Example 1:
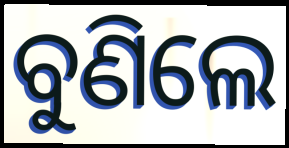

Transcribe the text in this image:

ବୁଣିଲେ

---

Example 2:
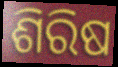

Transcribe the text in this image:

ଶିରିଷ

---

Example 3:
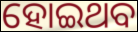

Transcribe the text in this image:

ହୋଇଥବ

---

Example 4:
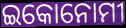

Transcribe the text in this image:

ଇକୋନୋମୀ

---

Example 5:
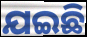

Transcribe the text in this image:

ଯଇଛି